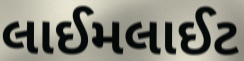
લાઈમલાઈટ